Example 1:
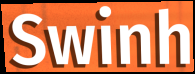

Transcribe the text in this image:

Swinh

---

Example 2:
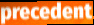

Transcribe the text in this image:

precedent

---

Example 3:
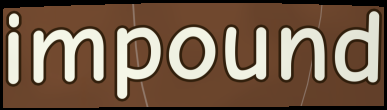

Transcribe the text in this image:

impound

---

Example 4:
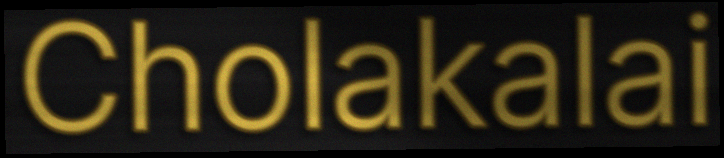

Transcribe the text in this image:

Cholakalai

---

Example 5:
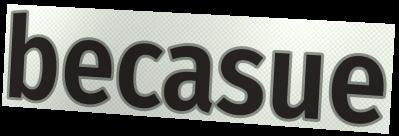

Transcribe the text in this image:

becasue